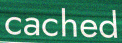
cached